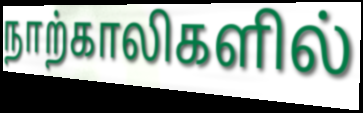
நாற்காலிகளில்